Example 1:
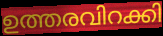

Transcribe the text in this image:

ഉത്തരവിറക്കി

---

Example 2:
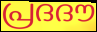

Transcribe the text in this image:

പ്രദദൗ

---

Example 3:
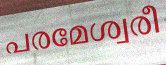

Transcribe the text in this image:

പരമേശ്വരീ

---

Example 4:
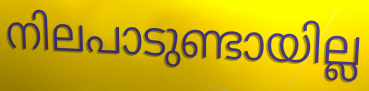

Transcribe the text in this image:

നിലപാടുണ്ടായില്ല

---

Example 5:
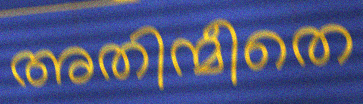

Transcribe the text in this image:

അതിന്മീതെ